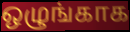
ஒழுங்காக